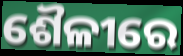
ଶୈଳୀରେ